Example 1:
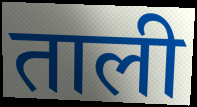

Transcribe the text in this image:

ताली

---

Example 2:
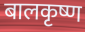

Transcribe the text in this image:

बालकृष्ण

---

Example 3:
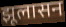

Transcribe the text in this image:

झूलासन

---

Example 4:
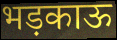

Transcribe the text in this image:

भड़काऊ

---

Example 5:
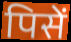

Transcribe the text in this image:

पिसें